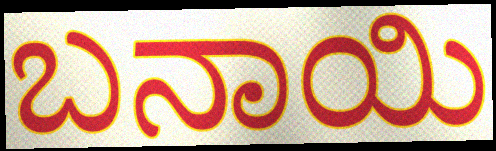
ಬನಾಯಿ